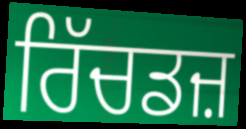
ਰਿੱਚਡਜ਼